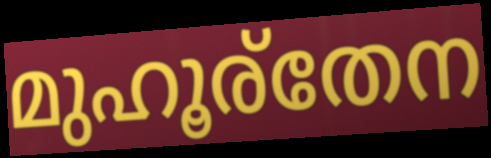
മുഹൂര്തേന